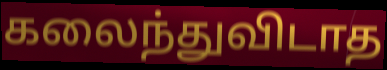
கலைந்துவிடாத